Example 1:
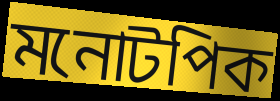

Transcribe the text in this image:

মনোটপিক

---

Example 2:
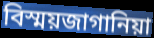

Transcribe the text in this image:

বিস্ময়জাগানিয়া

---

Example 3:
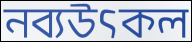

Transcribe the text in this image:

নব্যউৎকল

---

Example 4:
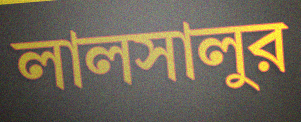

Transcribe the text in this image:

লালসালুর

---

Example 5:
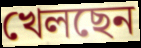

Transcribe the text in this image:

খেলছেন